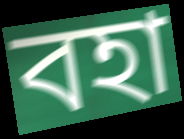
বহা